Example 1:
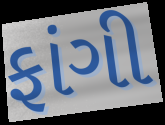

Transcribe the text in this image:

ફાંગી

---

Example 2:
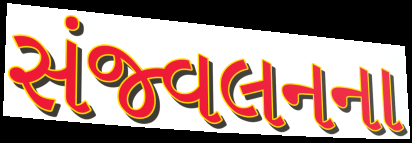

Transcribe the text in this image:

સંજ્વલનના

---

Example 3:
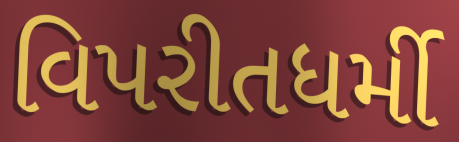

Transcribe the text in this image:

વિપરીતધર્મી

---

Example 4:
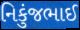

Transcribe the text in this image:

નિકુંજભાઈ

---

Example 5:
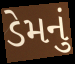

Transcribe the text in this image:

ડેમનું